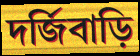
দর্জিবাড়ি